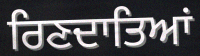
ਰਿਣਦਾਤਿਆਂ